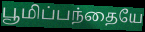
பூமிப்பந்தையே